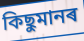
কিছুমানৰ